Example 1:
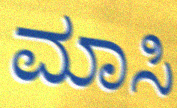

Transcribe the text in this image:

ಮಾಸಿ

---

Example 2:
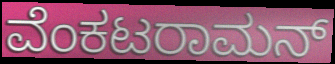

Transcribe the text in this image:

ವೆಂಕಟರಾಮನ್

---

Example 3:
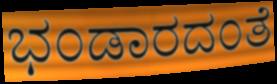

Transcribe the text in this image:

ಭಂಡಾರದಂತೆ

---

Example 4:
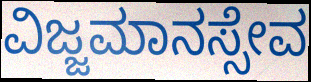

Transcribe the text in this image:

ವಿಜ್ಜಮಾನಸ್ಸೇವ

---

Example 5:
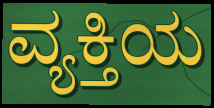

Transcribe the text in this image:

ವ್ಯಕ್ತಿಯ